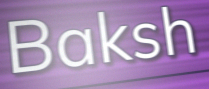
Baksh